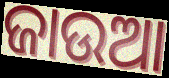
ଜାଉଆ